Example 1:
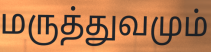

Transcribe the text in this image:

மருத்துவமும்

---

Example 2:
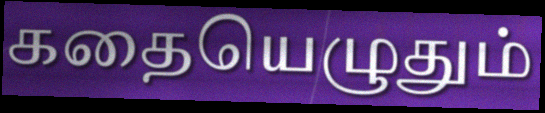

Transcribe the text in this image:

கதையெழுதும்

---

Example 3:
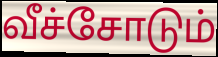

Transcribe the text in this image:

வீச்சோடும்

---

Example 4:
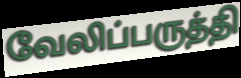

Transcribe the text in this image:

வேலிப்பருத்தி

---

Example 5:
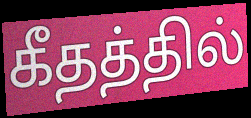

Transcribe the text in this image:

கீதத்தில்